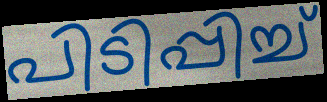
പിടിപ്പിച്ച്